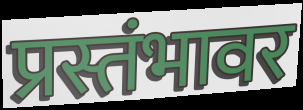
प्रस्तंभावर